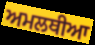
ਅਮਲਥੀਆ